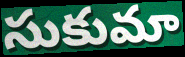
సుకుమా